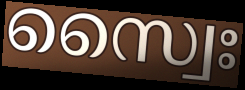
സ്വൈഃ